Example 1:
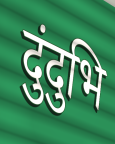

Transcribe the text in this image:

दुंदुभि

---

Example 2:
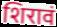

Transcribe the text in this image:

शिरावं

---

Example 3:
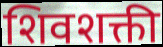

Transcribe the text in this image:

शिवशक्ती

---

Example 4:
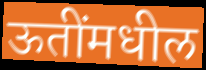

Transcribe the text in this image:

ऊतींमधील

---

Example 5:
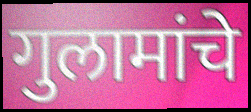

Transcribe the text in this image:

गुलामांचे